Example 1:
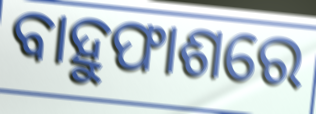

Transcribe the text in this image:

ବାହୁଫାଶରେ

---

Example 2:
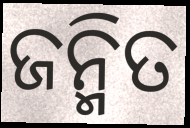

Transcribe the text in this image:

ଜନ୍ମିତ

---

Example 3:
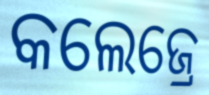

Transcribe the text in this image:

କଲେଜ୍ରେ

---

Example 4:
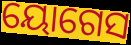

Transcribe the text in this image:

ୟୋଗେସ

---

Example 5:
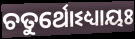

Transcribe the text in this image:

ଚତୁର୍ଥୋଽଧ୍ୟାୟଃ